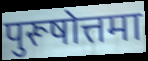
पुरूषोत्तमा